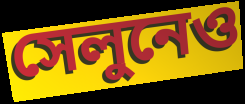
সেলুনেও